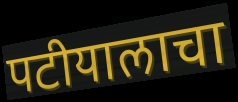
पटीयालाचा